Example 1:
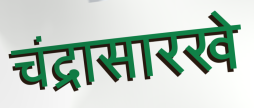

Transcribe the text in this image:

चंद्रासारखे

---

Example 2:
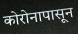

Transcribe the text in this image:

कोरोनापासून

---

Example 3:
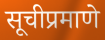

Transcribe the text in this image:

सूचीप्रमाणे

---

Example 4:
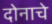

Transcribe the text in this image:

दोनाचे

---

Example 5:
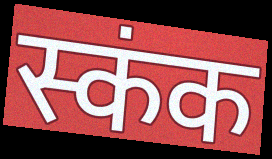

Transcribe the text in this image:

स्कंक